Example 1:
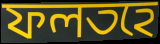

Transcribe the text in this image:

ফলতহে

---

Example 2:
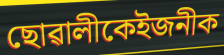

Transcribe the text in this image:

ছোৱালীকেইজনীক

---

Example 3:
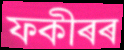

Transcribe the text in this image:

ফকীৰৰ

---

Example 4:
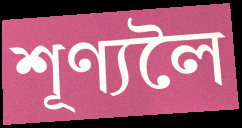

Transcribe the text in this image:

শূণ্যলৈ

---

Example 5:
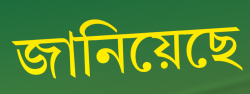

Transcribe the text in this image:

জানিয়েছে